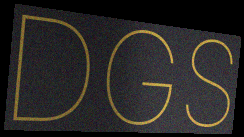
DGS